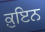
ਕ਼ੁਇਨ